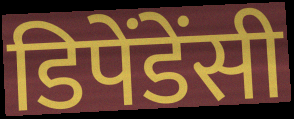
डिपेंडेंसी